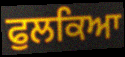
ਫੁਲਕਿਆ